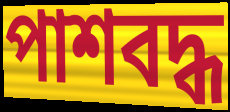
পাশবদ্ধ